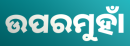
ଉପରମୁହାଁ